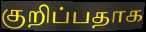
குறிப்பதாக